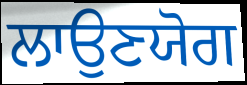
ਲਾਉਣਯੋਗ